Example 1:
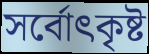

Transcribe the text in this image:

সৰ্বোৎকৃষ্ট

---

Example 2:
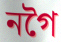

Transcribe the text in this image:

নগৈ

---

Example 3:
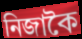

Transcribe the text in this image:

নিজাকৈ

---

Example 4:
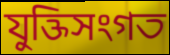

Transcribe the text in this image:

যুক্তিসংগত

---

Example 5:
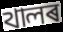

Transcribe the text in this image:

থালৰ